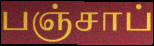
பஞ்சாப்